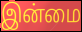
இன்மை